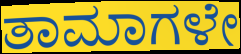
ತಾಮಾಗಳೇ